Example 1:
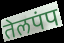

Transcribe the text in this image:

तेलपंप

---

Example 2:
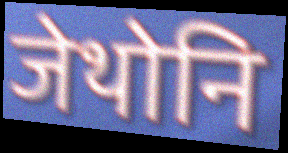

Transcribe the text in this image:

जेथोनि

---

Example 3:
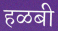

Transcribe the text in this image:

हळबी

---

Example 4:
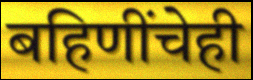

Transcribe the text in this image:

बहिणींचेही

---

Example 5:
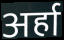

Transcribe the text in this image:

अर्हा